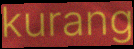
kurang